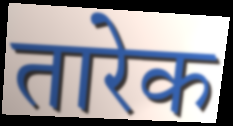
तारेक